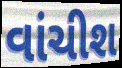
વાંચીશ